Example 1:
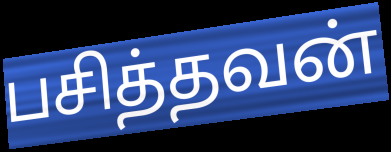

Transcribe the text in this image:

பசித்தவன்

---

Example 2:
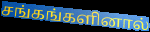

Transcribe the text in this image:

சங்கங்களினால்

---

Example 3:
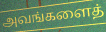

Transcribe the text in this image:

அவங்களைத்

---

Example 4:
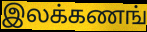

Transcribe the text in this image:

இலக்கணங்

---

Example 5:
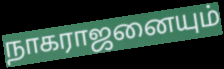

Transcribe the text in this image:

நாகராஜனையும்